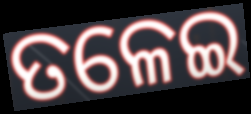
ତଳେଇ